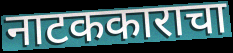
नाटककाराचा